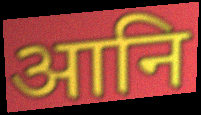
आनि